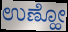
ಉಣ್ಹೋ